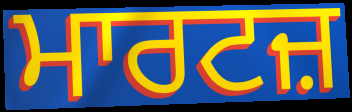
ਮਾਰਟਜ਼